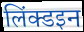
लिंक्डइन